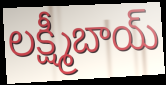
లక్ష్మీబాయ్